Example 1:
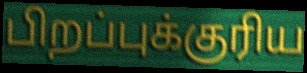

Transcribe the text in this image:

பிறப்புக்குரிய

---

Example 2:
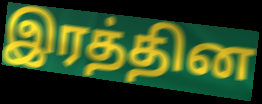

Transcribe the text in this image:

இரத்தின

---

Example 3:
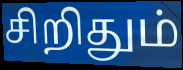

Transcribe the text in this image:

சிறிதும்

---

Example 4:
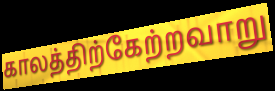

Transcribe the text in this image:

காலத்திற்கேற்றவாறு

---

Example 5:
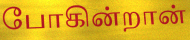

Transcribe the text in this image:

போகின்றான்